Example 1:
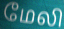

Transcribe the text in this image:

மேலி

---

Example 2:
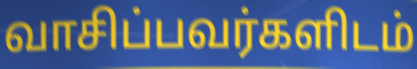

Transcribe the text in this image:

வாசிப்பவர்களிடம்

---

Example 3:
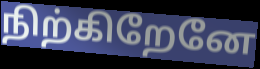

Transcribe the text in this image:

நிற்கிறேனே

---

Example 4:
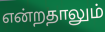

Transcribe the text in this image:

என்றதாலும்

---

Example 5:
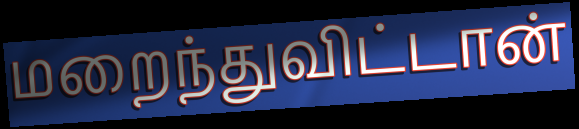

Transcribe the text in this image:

மறைந்துவிட்டான்